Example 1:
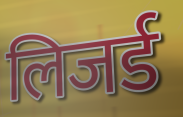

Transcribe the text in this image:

लिजर्ड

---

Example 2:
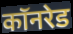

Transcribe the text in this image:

कॉनरेड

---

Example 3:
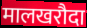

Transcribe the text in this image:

मालखरौदा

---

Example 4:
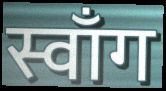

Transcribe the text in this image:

स्वाँग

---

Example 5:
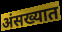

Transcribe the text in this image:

अंसख्यात